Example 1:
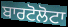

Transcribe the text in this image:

ਬਾਰਟੋਲੋਟਾ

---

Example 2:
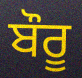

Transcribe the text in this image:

ਬੌਰੂ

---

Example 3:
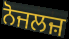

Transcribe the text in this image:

ਨੋਜਲਜ਼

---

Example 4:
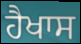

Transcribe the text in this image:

ਹੈਖਾਸ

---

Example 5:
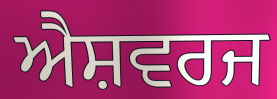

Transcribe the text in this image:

ਐਸ਼ਵਰਜ